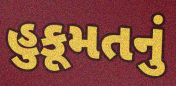
હુકૂમતનું